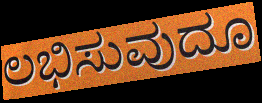
ಲಭಿಸುವುದೂ